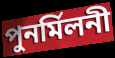
পুনর্মিলনী